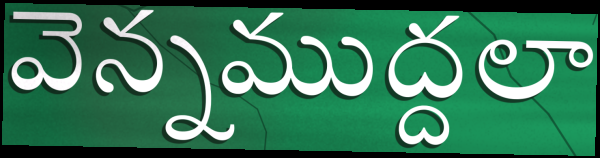
వెన్నముద్దలా